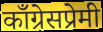
काँग्रेसप्रेमी